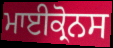
ਮਾਈਕ੍ਰੋਨਸ